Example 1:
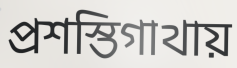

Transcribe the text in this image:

প্রশস্তিগাথায়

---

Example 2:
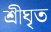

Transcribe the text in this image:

শ্রীঘৃত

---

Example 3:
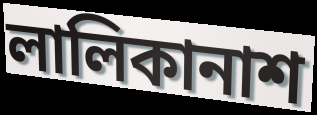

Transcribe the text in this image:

লালিকানাশ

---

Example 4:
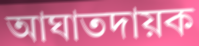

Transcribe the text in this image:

আঘাতদায়ক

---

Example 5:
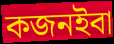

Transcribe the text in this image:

কজনইবা